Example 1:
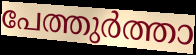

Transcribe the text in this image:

പേത്തുർത്താ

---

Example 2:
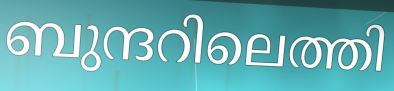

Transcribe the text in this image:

ബുന്ദറിലെത്തി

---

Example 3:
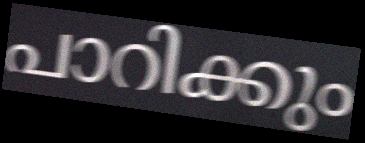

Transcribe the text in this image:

പാറിക്കും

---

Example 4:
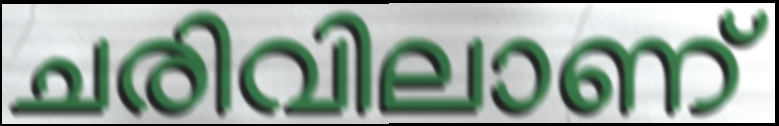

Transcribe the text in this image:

ചരിവിലാണ്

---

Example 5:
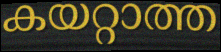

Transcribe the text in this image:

കയറ്റാത്ത